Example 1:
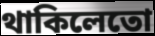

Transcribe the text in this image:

থাকিলেতো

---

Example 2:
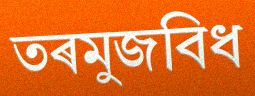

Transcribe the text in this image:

তৰমুজবিধ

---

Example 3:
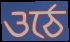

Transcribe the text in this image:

ওঠে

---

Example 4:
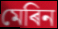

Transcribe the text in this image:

মেৰিন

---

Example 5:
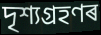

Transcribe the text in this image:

দৃশ্যগ্ৰহণৰ